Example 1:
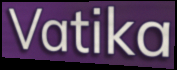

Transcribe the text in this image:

Vatika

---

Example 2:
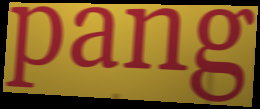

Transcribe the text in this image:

pang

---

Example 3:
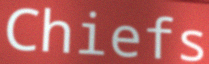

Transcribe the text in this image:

Chiefs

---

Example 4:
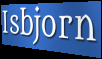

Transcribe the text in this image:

Isbjorn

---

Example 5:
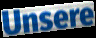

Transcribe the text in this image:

Unsere